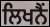
ਲਿਖਨੈਂ